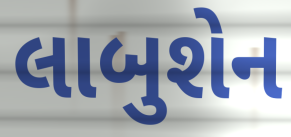
લાબુશેન